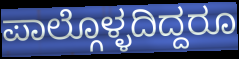
ಪಾಲ್ಗೊಳ್ಳದಿದ್ದರೂ